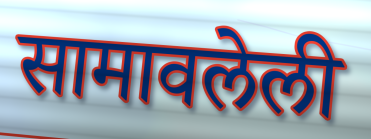
सामावलेली